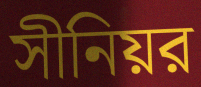
সীনিয়র